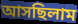
আসছিলাম